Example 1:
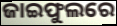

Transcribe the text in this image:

ଜାଇଫୁଲରେ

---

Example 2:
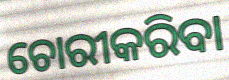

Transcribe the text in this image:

ଚୋରୀକରିବା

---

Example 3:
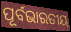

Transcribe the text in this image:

ପୂର୍ବଭାରତୀୟ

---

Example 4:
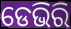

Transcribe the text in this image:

ଡେଭିରି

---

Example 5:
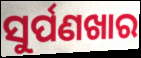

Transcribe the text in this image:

ସୁର୍ପଣଖାର